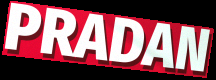
PRADAN